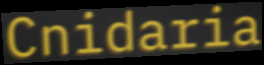
Cnidaria